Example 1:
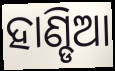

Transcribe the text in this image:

ହାଣ୍ଡିଆ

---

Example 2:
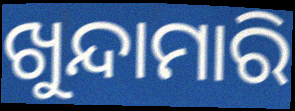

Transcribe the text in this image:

ଖୁନ୍ଦାମାରି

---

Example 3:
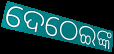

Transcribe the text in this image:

ଦେଠେଇଙ୍କ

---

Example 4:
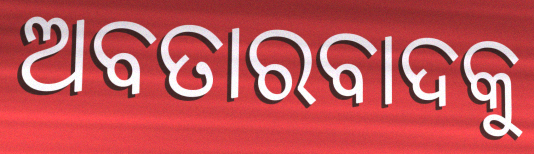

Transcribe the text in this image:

ଅବତାରବାଦକୁ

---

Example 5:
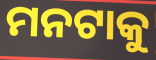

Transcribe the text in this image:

ମନଟାକୁ